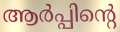
ആർപ്പിന്റെ